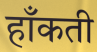
हाँकती